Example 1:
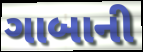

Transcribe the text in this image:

ગાબાની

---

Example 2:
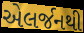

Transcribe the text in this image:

એલર્જનથી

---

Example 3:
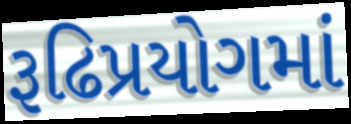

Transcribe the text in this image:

રૂઢિપ્રયોગમાં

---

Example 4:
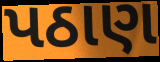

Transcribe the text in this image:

પઠાણ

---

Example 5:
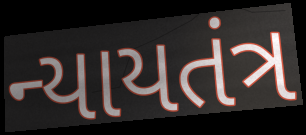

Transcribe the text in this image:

ન્યાયતંત્ર